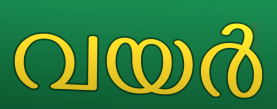
വയർ